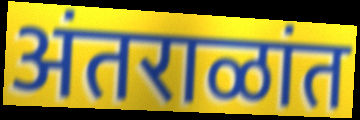
अंतराळांत